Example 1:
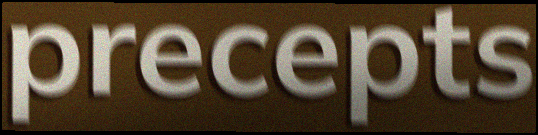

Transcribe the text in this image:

precepts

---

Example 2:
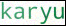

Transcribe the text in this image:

karyu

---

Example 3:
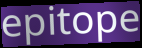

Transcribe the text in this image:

epitope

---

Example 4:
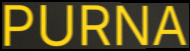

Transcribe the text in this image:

PURNA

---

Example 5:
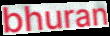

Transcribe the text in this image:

bhuran